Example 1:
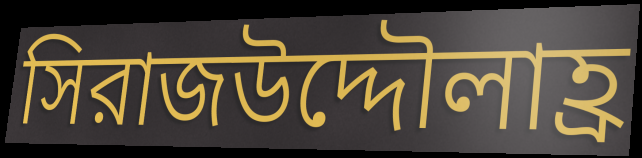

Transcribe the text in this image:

সিরাজউদ্দৌলাহ্র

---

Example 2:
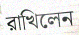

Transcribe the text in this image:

রাখিলেন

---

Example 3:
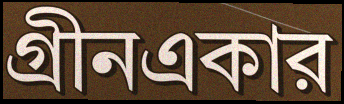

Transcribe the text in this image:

গ্রীনএকার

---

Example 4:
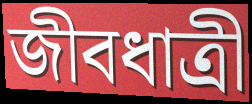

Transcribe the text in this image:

জীবধাত্রী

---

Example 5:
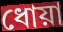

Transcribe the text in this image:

ধোয়া